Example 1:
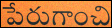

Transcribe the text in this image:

పేరుగాంచి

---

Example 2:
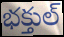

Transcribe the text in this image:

భక్తుల్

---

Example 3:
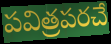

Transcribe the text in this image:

పవిత్రపరచే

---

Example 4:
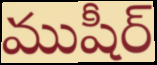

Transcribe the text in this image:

ముషీర్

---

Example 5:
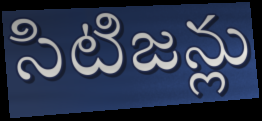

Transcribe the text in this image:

సిటిజన్లు